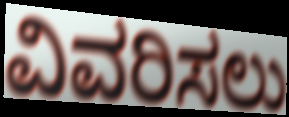
ವಿವರಿಸಲು